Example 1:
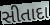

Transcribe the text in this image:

સીતાદા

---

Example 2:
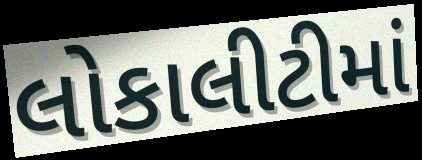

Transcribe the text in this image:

લોકાલીટીમાં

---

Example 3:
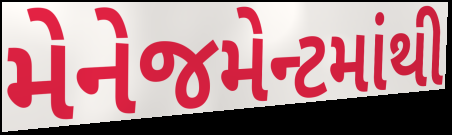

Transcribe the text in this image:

મેનેજમેન્ટમાંથી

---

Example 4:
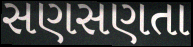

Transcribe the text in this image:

સણસણતા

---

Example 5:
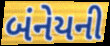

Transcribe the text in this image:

બંનેયની